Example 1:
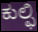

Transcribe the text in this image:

ಕುಲ್ಫಿ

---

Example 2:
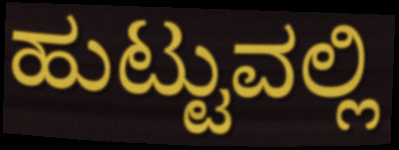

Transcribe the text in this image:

ಹುಟ್ಟುವಲ್ಲಿ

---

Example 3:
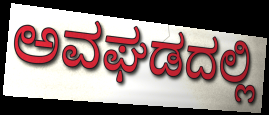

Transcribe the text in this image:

ಅವಘಡದಲ್ಲಿ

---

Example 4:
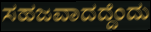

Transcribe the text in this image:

ಸಹಜವಾದದ್ದೆಂದು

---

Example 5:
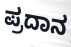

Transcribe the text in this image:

ಪ್ರದಾನ